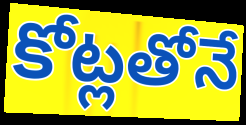
కోట్లతోనే